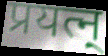
प्रयत्न्